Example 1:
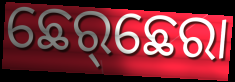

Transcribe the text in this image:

ଛେର୍‌ଛେରା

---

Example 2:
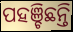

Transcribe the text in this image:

ପହଞ୍ଚିଛନ୍ତି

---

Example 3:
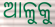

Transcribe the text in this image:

ଆଳୁକୁ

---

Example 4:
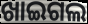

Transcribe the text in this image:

ଖାଇଗଲ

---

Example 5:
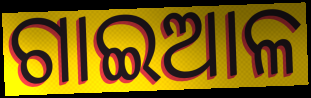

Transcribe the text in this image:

ଗାଇଆଳ